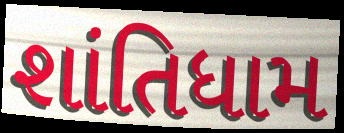
શાંતિધામ